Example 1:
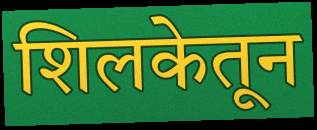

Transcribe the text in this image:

शिलकेतून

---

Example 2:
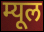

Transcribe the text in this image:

म्यूल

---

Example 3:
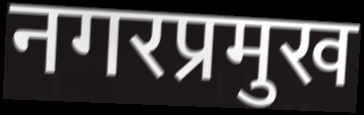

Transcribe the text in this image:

नगरप्रमुख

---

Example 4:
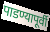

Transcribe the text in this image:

पाडण्यापूर्वी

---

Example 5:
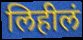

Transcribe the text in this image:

लिहीलं